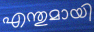
എന്തുമായി